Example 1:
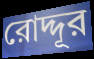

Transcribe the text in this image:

রোদ্দূর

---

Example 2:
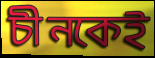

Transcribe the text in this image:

চীনকেই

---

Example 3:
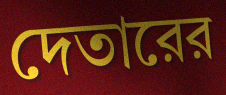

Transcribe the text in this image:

দেতারের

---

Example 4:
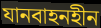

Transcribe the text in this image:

যানবাহনহীন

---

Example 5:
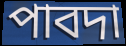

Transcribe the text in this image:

পাবদা